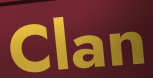
Clan